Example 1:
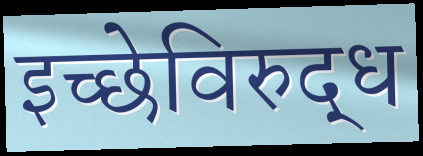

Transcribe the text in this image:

इच्छेविरुद्ध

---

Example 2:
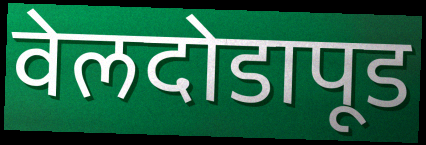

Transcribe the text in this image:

वेलदोडापूड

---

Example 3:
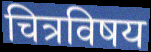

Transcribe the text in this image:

चित्रविषय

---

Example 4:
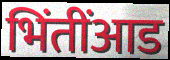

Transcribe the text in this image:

भिंतींआड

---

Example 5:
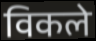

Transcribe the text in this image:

विकले